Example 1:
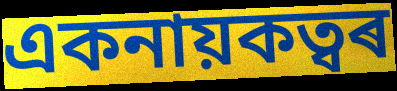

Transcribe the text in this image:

একনায়কত্বৰ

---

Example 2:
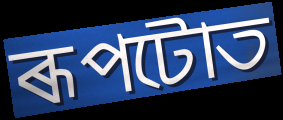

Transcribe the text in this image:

ৰূপটোত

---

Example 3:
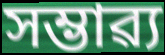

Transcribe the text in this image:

সম্ভাৱ্য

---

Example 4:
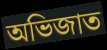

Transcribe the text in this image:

অভিজাত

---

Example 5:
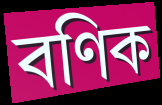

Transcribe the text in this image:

বণিক